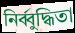
নির্ব্বুদ্ধিতা